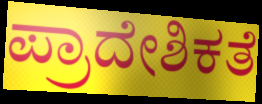
ಪ್ರಾದೇಶಿಕತೆ